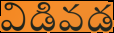
విడివడ